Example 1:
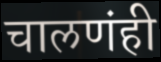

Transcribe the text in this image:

चालणंही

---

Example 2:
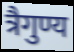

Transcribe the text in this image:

त्रैगुण्य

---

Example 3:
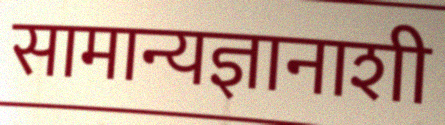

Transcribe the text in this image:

सामान्यज्ञानाशी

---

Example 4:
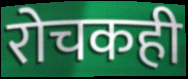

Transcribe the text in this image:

रोचकही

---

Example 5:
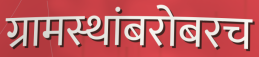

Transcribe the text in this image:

ग्रामस्थांबरोबरच